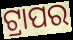
ଟ୍ରାପର